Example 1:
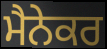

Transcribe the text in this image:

ਮੈਨੇਕਰ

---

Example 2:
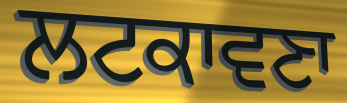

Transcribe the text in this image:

ਲਟਕਾਵਣਾ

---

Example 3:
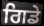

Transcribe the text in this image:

ਗਿਡੇ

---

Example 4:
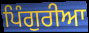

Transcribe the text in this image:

ਪਿੰਗੁਰੀਆ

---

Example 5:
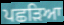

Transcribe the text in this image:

ਪਛੜਿਆ